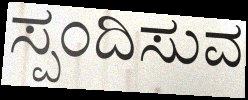
ಸ್ಪಂದಿಸುವ